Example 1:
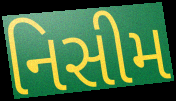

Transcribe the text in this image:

નિસીમ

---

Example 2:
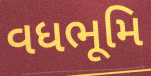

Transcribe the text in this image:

વધભૂમિ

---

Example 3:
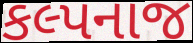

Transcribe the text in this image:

કલ્પનાજ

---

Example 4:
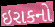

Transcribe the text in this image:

ઇરાકનો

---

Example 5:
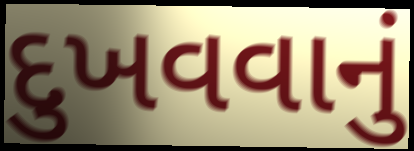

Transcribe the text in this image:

દુખવવાનું